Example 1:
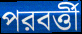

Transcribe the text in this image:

পরবর্ত্তী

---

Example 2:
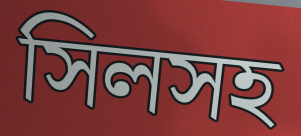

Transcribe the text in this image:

সিলসহ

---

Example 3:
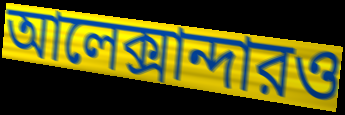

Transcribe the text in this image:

আলেক্সান্দারও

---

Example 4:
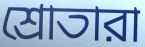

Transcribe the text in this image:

শ্রোতারা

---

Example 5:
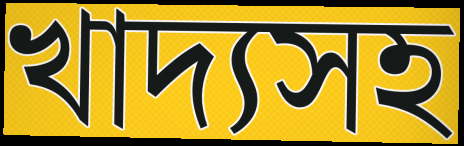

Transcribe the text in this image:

খাদ্যসহ